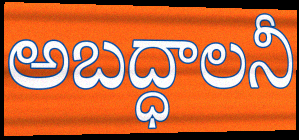
అబద్ధాలనీ